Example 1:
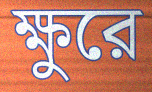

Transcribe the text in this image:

ক্ষুরে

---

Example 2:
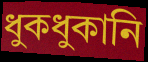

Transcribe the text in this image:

ধুকধুকানি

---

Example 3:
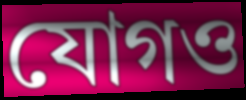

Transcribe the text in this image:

যোগও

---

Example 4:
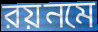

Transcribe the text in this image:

রয়নমে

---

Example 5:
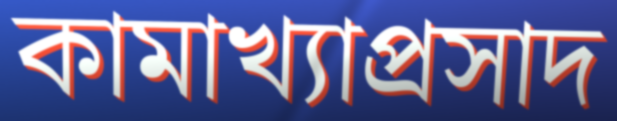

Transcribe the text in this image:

কামাখ্যাপ্রসাদ